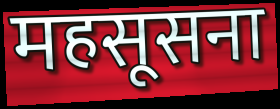
महसूसना